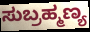
ಸುಬ್ರಹ್ಮಣ್ಯ